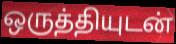
ஒருத்தியுடன்